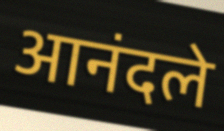
आनंदले